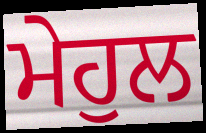
ਮੇਹੁਲ